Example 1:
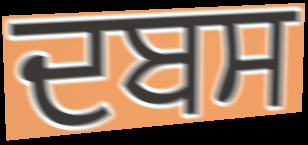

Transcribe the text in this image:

ਦਬਸ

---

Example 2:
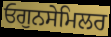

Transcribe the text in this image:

ਓਗੁਨਸੇਮਿਲਰ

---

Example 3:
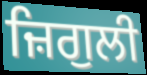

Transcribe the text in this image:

ਜ਼ਿਗੁਲੀ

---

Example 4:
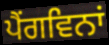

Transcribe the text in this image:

ਪੈਂਗਵਿਨਾਂ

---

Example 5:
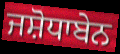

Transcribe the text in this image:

ਜਸ਼ੋਧਾਬੇਨ